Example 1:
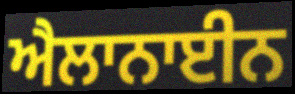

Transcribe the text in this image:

ਐਲਾਨਾਈਨ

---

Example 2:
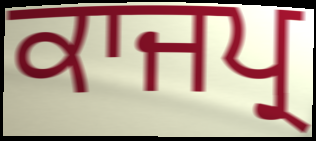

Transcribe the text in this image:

ਕਾਜਪ੍ਰ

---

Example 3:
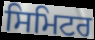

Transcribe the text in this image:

ਸਿਮਿਟਰ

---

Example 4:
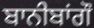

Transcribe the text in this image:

ਬਾਨੀਬਾਂਗੌ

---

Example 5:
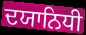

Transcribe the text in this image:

ਦਯਾਨਿਧੀ